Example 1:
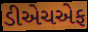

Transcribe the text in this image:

ડીએચએફ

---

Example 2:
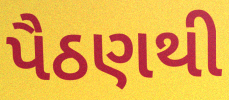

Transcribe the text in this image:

પૈઠણથી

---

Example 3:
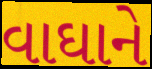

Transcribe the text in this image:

વાઘાને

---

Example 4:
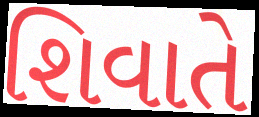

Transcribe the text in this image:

શિવાતે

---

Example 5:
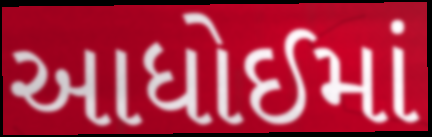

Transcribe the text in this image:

આધોઈમાં